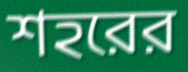
শহরের